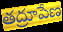
తద్రూపేణ